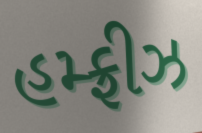
હમ્ફ્રીઝ